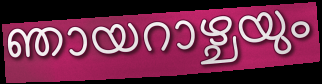
ഞായറാഴ്ചയും